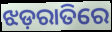
ଝଡ଼ରାତିରେ